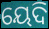
ୟେଦି